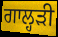
ਗਾਲ੍ਹੜੀ